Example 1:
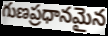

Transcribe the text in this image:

గుణప్రధానమైన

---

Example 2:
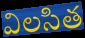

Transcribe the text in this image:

విలసిత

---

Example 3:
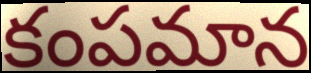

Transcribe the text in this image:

కంపమాన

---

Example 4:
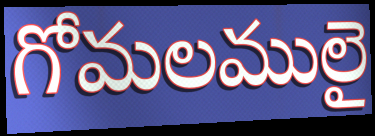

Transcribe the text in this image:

గోమలములై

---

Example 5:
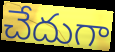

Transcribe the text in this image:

చేదుగా